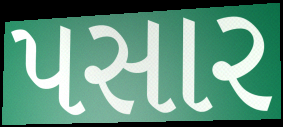
પસાર